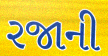
રજાની